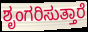
ಶೃಂಗರಿಸುತ್ತಾರೆ